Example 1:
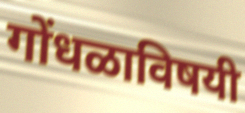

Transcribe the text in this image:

गोंधळाविषयी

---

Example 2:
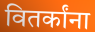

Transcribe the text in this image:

वितर्कांना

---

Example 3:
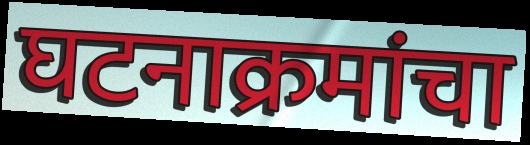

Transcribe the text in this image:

घटनाक्रमांचा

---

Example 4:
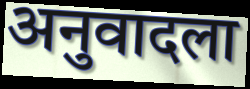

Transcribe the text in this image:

अनुवादला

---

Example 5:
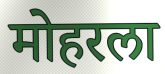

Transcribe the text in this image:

मोहरला